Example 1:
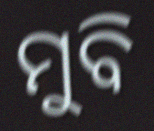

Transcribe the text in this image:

ମୁବି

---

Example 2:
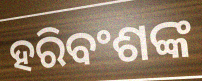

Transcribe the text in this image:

ହରିବଂଶଙ୍କ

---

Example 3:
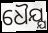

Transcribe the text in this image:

ଧୈଯ୍ଯ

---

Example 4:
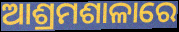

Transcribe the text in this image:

ଆଶ୍ରମଶାଳାରେ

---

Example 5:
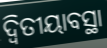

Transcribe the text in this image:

ଦ୍ବିତୀୟାବସ୍ଥା